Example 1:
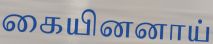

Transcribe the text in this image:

கையினனாய்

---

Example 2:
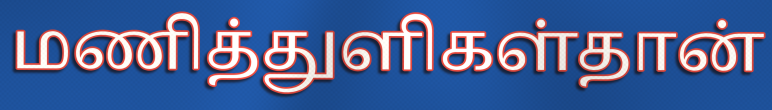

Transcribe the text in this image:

மணித்துளிகள்தான்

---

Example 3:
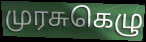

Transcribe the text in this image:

முரசுகெழு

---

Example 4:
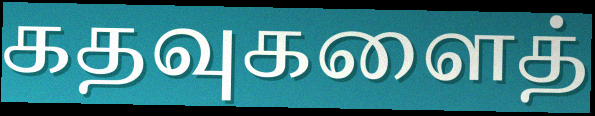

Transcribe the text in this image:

கதவுகளைத்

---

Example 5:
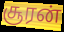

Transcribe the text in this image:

சூரன்